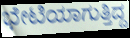
ಭೇಟಿಯಾಗುತ್ತಿದ್ದ